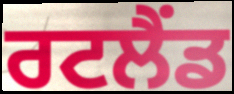
ਰਟਲੈਂਡ